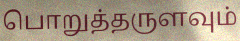
பொறுத்தருளவும்